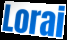
Lorai